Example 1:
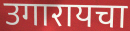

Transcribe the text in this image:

उगारायचा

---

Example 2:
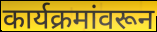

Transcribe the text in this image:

कार्यक्रमांवरून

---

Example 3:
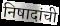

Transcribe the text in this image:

निषादांची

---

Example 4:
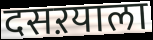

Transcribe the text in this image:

दसऱयाला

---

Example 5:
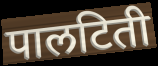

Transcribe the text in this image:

पालटिती